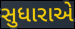
સુધારાએ